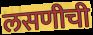
लसणीची